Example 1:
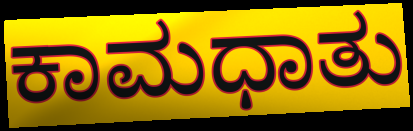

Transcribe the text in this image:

ಕಾಮಧಾತು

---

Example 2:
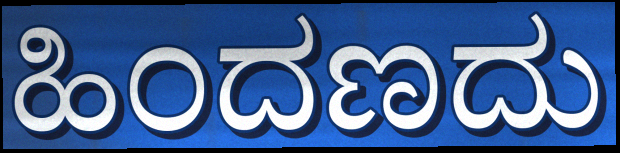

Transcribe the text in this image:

ಹಿಂದಣದು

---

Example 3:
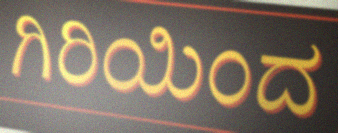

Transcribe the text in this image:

ಗಿರಿಯಿಂದ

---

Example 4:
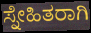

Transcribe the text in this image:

ಸ್ನೇಹಿತರಾಗಿ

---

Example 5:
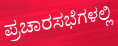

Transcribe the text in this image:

ಪ್ರಚಾರಸಭೆಗಳಲ್ಲಿ